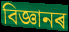
বিজ্ঞানৰ